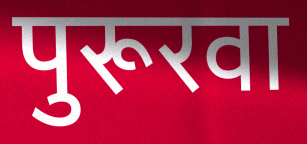
पुरूरवा